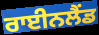
ਰਾਈਨਲੈਂਡ